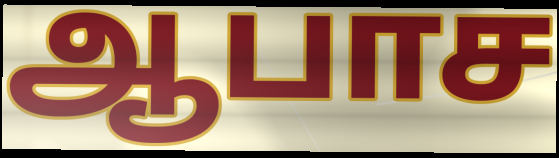
ஆபாச